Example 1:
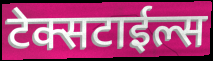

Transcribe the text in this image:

टेक्सटाईल्स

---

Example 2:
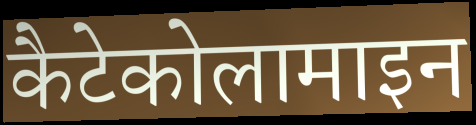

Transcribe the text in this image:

कैटेकोलामाइन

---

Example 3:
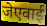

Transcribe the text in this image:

जेएवाई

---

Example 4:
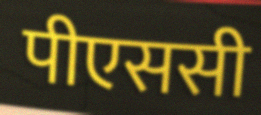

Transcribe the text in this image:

पीएससी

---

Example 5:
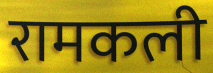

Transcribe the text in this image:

रामकली